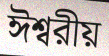
ঈশ্বরীয়